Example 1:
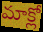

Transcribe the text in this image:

మాక్లో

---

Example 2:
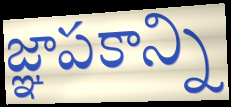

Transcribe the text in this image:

జ్ఞాపకాన్ని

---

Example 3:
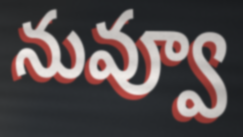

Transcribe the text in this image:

నువ్వూ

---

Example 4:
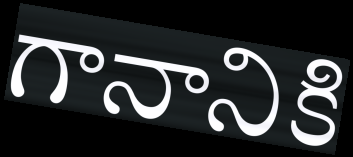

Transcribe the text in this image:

గానానికి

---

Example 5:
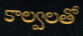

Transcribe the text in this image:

కాల్వలతో